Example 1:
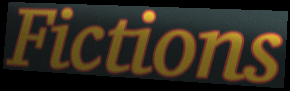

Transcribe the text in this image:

Fictions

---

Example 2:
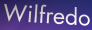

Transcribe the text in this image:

Wilfredo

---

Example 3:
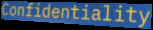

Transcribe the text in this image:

Confidentiality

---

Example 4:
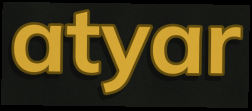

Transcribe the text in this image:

atyar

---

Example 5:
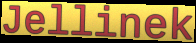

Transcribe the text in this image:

Jellinek